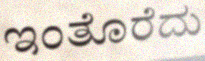
ಇಂತೊರೆದು